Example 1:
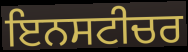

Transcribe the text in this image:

ਇਨਸਟੀਚਰ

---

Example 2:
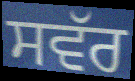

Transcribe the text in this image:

ਸਵੱਰ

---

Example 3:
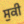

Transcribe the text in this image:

ਸੁਕੀ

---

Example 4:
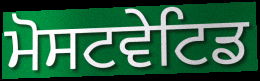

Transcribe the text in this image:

ਮੋਸਟਵੇਟਿਡ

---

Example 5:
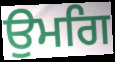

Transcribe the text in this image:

ਉਮਗਿ